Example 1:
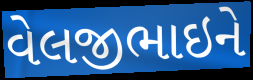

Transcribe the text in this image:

વેલજીભાઇને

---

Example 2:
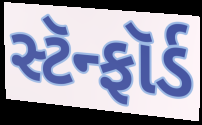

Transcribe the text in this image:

સ્ટૅન્ફૉર્ડ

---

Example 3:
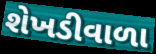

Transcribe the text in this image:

શેખડીવાળા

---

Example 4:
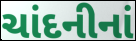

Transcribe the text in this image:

ચાંદનીનાં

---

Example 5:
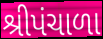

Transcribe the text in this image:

શ્રીપંચાળા